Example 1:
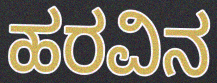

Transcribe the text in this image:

ಹರವಿನ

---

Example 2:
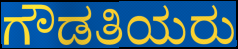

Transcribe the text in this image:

ಗೌಡತಿಯರು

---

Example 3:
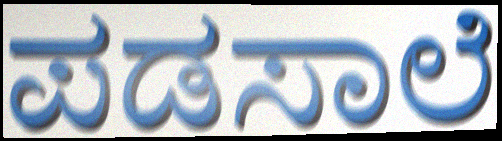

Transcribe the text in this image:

ಪಡಸಾಲೆ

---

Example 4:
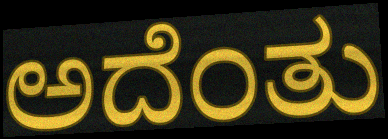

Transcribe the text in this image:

ಅದೆಂತು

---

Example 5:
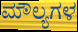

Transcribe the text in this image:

ಮೌಲ್ಯಗಳ